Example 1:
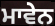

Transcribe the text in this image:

ਮਾਵੇਨ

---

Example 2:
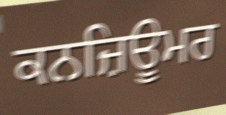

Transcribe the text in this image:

ਕਨਜ਼ਿਊਮਰ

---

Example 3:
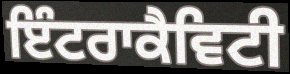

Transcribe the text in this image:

ਇੰਟਰਾਕੈਵਿਟੀ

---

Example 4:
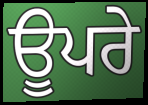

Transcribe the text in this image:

ਊਪਰੇ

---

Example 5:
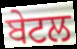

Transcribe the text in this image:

ਬੇਟਲ